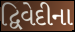
દ્વિવેદીના